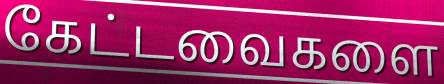
கேட்டவைகளை